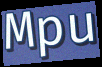
Mpu